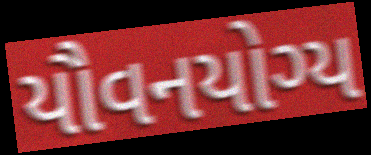
યૌવનયોગ્ય